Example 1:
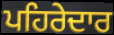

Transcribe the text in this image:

ਪਹਿਰੇਦਾਰ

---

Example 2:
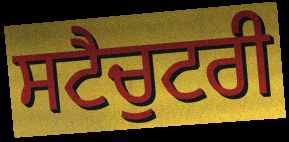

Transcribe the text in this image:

ਸਟੈਚੁਟਰੀ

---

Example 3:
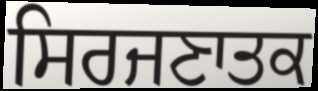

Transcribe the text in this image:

ਸਿਰਜਣਾਤਕ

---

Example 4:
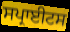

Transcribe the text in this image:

ਸਪ੍ਰਾਈਟਸ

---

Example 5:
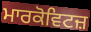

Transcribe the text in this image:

ਮਾਰਕੋਵਿਟਜ਼